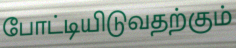
போட்டியிடுவதற்கும்